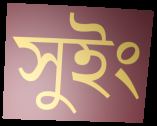
সুইং